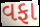
વફા